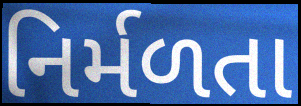
નિર્મળતા